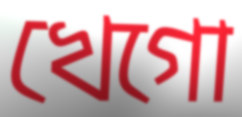
খেগো